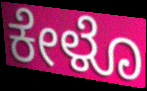
ಕೇಳೊ